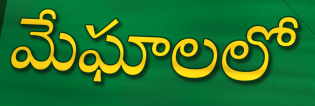
మేఘాలలో